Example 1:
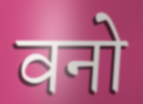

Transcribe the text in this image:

वनो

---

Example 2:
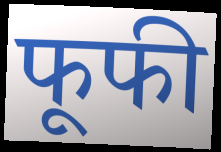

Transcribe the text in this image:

फूफी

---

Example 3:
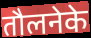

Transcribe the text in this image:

तौलनेके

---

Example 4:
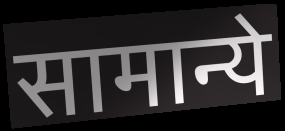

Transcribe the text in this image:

सामान्ये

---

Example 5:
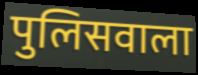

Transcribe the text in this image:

पुलिसवाला